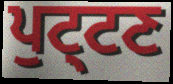
ਪੁਟ੍ਟਣ